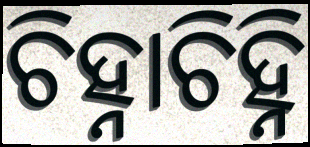
ଚିହ୍ନାଚିହ୍ନି